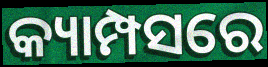
କ୍ୟାମ୍ପସରେ